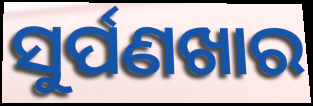
ସୁର୍ପଣଖାର